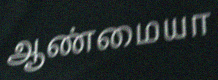
ஆண்மையா